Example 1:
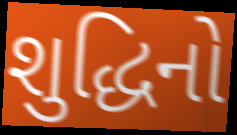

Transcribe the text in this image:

શુદ્ધિનો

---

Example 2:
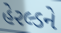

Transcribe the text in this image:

હેરલ્ડને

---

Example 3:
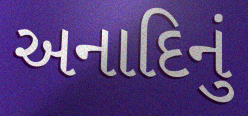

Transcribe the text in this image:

અનાદિનું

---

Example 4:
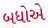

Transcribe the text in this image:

બધોએ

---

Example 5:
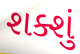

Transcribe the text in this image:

શક્શું